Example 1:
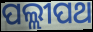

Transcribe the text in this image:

ପଲ୍ଲୀପଥ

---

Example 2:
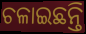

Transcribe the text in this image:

ଚଳାଇଛନ୍ତି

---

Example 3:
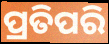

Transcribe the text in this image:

ପ୍ରତିପରି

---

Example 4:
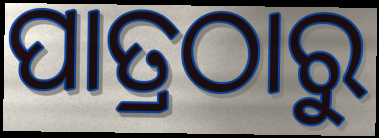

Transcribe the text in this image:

ପାତ୍ରଠାରୁ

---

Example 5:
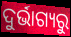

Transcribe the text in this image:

ଦୁର୍ଭାଗ୍ୟରୁ